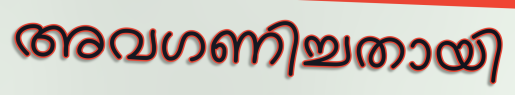
അവഗണിച്ചതായി